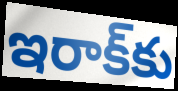
ఇరాక్‌కు